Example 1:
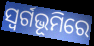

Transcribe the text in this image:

ସ୍ଵର୍ଗଭୂମିରେ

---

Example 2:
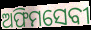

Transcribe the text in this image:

ଅଫିମସେବୀ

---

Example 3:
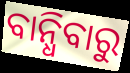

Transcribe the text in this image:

ବାନ୍ଧିବାରୁ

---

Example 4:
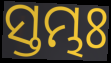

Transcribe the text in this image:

ସ୍ତମ୍ଭଃ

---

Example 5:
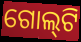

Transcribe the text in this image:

ଗୋଲ୍‍ଟି